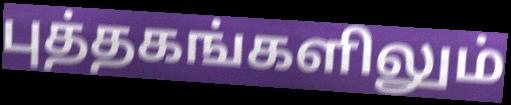
புத்தகங்களிலும்